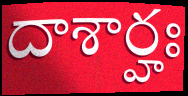
దాశార్హః